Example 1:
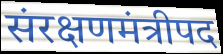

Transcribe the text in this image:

संरक्षणमंत्रीपद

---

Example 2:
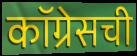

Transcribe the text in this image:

कॉग्रेसची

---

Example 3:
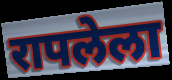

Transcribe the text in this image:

रापलेला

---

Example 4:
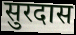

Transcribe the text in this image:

सुरदास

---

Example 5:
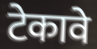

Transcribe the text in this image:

टेकावे